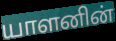
யாளனின்